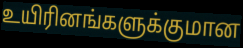
உயிரினங்களுக்குமான